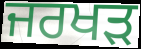
ਜਰਖੜ